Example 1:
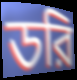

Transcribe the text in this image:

ডরি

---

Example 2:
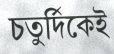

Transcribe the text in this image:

চতুর্দিকেই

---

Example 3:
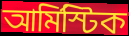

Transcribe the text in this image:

আর্মিস্টিক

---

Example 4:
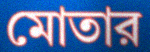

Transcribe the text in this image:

মোতার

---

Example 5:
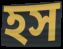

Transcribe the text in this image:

হস